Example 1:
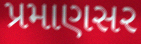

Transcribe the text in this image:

પ્રમાણસર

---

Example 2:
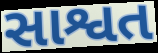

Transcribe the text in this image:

સાશ્વત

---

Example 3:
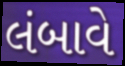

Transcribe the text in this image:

લંબાવે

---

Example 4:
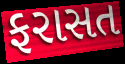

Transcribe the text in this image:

ફરાસત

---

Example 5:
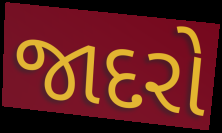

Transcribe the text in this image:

જાદરો